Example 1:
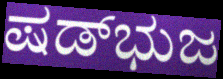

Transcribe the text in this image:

ಷಡ್‌ಭುಜ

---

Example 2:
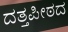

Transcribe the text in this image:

ದತ್ತಪೀಠದ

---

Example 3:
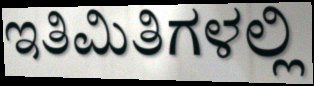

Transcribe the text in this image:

ಇತಿಮಿತಿಗಳಲ್ಲಿ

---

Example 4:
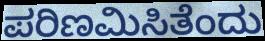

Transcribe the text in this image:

ಪರಿಣಮಿಸಿತೆಂದು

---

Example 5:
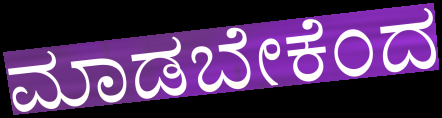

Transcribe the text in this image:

ಮಾಡಬೇಕೆಂದ